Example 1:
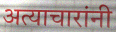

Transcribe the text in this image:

अत्याचारांनी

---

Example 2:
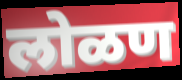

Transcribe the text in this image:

लोळण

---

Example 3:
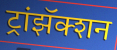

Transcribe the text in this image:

ट्रांझॅक्शन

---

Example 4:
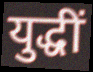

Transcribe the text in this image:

युद्धीं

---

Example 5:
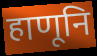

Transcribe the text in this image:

हाणूनि